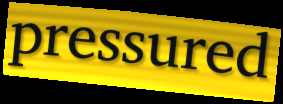
pressured